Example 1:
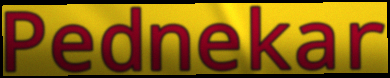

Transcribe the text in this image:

Pednekar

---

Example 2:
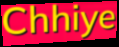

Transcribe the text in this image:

Chhiye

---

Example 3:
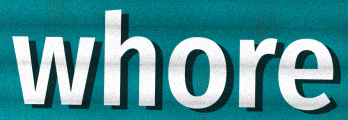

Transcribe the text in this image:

whore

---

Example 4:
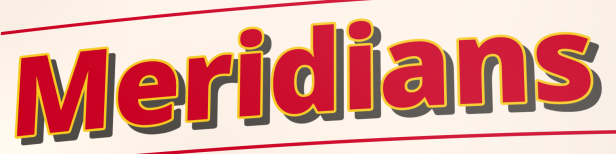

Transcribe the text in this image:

Meridians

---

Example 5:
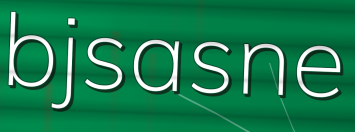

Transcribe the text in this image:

bjsasne